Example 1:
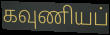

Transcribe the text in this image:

கவுணியப்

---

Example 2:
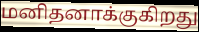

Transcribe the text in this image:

மனிதனாக்குகிறது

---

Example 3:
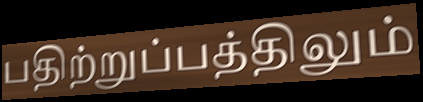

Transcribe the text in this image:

பதிற்றுப்பத்திலும்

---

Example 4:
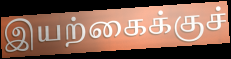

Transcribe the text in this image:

இயற்கைக்குச்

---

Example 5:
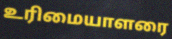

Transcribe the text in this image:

உரிமையாளரை